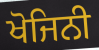
ਖੋਜਿਨੀ